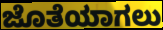
ಜೊತೆಯಾಗಲು